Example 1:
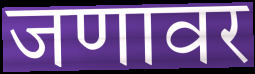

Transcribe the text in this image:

जणावर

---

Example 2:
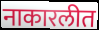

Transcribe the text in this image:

नाकारलीत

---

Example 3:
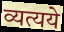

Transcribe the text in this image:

व्यत्यये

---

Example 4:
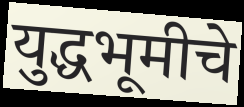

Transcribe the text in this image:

युद्धभूमीचे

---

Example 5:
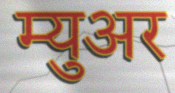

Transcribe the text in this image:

म्युअर